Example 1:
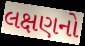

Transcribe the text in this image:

લક્ષણનો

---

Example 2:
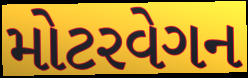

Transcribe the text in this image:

મોટરવેગન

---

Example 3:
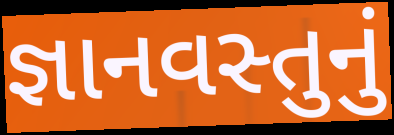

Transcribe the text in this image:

જ્ઞાનવસ્તુનું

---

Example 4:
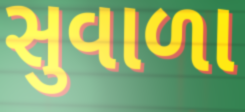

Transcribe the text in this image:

સુવાળા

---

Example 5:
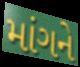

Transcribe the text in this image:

માંગને